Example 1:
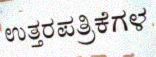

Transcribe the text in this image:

ಉತ್ತರಪತ್ರಿಕೆಗಳ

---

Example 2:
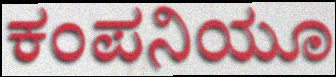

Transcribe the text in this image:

ಕಂಪನಿಯೂ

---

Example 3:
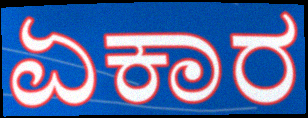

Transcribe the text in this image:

ಏಕಾರ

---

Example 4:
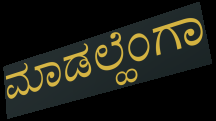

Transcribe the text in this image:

ಮಾಡಲ್ಹೆಂಗಾ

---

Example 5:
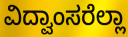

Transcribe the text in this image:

ವಿದ್ವಾಂಸರೆಲ್ಲಾ